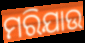
ମରିଯାଉ